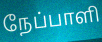
நேப்பாளி